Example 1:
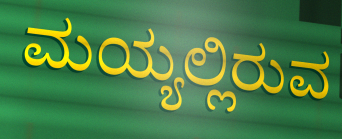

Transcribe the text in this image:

ಮಯ್ಯಲ್ಲಿರುವ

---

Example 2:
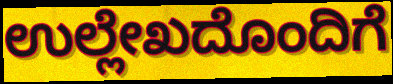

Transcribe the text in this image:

ಉಲ್ಲೇಖದೊಂದಿಗೆ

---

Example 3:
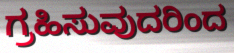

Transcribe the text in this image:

ಗ್ರಹಿಸುವುದರಿಂದ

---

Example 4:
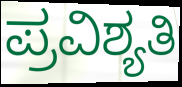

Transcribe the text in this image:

ಪ್ರವಿಶ್ಯತಿ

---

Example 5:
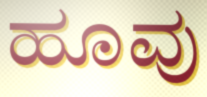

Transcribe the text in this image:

ಹೂವು